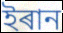
ইৰান